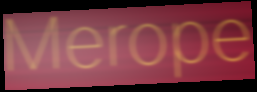
Merope